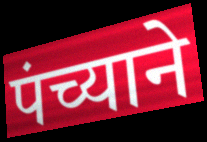
पंच्याने